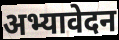
अभ्यावेदन